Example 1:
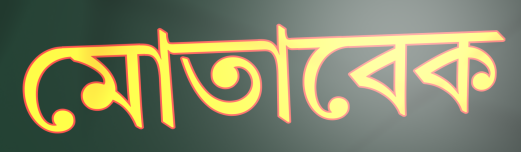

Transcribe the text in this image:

মোতাবেক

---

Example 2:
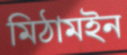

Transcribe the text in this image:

মিঠামইন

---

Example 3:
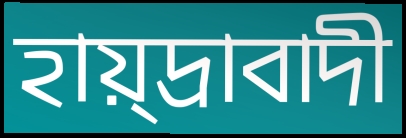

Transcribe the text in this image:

হায়্দ্রাবাদী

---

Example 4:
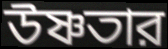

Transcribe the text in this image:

উষ্ণতার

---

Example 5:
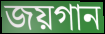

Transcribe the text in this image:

জয়গান